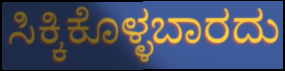
ಸಿಕ್ಕಿಕೊಳ್ಳಬಾರದು